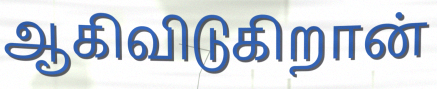
ஆகிவிடுகிறான்